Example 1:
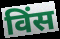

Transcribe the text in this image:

विंस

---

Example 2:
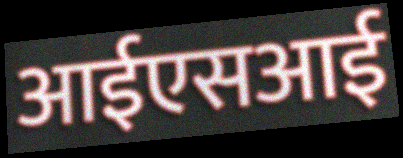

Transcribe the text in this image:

आईएसआई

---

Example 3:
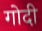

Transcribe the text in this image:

गोदी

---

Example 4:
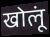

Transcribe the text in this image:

खोलूं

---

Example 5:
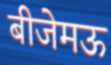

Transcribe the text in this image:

बीजेमऊ